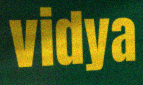
vidya